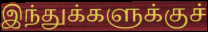
இந்துக்களுக்குச்